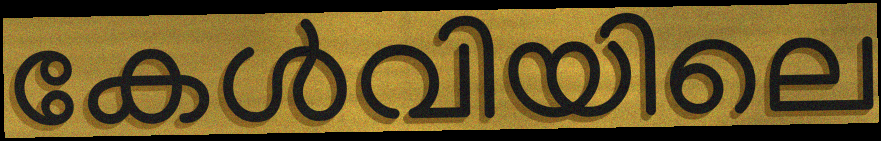
കേൾവിയിലെ